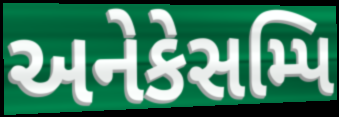
અનેકેસમ્પિ